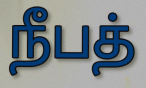
நீபத்